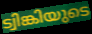
ട്വിങ്കിയുടെ